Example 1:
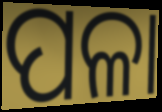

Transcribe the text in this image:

ପଳା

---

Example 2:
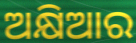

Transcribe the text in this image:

ଅକ୍ଷିଆର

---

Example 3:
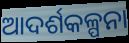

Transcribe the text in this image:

ଆଦର୍ଶକଳ୍ପନା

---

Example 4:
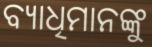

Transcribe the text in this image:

ବ୍ୟାଧିମାନଙ୍କୁ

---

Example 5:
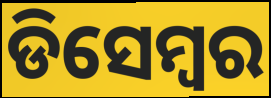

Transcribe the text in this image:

ଡିସେମ୍ୱର